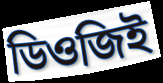
ডিওজিই